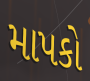
માપકો